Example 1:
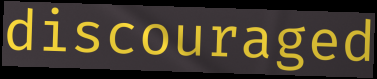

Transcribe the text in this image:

discouraged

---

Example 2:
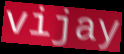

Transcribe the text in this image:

vijay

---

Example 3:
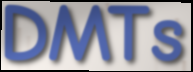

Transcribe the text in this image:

DMTs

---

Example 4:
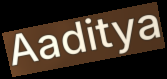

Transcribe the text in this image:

Aaditya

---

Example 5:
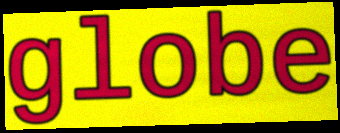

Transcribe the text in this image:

globe